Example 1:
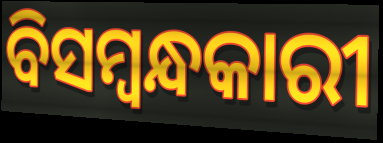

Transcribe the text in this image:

ବିସମ୍ବନ୍ଧକାରୀ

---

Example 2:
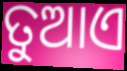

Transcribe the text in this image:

ତୁଆଏ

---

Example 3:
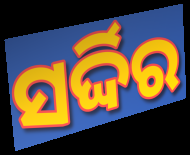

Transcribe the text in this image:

ସର୍ଦ୍ଦିର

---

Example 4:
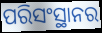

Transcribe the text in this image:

ପରିସଂସ୍ଥାନର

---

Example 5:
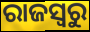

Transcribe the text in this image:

ରାଜସ୍ୱରୁ